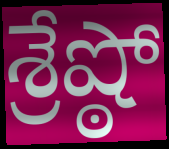
శ్రేష్ఠో